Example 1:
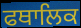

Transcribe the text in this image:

ਫਥਾਲਿਕ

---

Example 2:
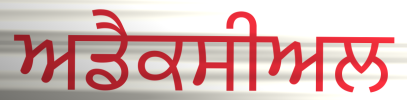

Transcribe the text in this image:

ਅਡੈਕਸੀਅਲ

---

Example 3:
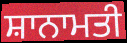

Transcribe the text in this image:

ਸ਼ਾਨਾਮਤੀ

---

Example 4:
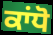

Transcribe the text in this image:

ਕਾਂਧੋ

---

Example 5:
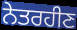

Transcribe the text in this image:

ਨੇਤਰਹੀਣ